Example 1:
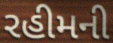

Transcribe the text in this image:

રહીમની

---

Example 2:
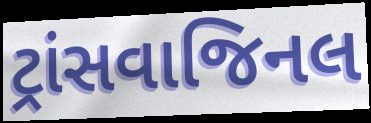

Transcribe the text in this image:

ટ્રાંસવાજિનલ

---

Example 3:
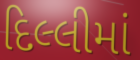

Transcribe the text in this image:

દિલ્લીમાં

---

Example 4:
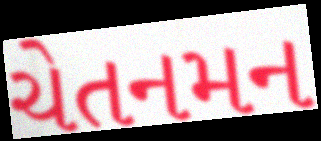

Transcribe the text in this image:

ચેતનમન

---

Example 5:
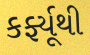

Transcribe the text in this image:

કર્ફ્યૂથી